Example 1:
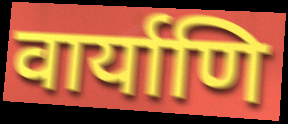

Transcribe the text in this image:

वार्याणि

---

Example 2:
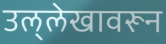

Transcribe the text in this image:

उल्लेखावरून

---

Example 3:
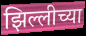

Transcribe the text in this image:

झिल्लीच्या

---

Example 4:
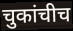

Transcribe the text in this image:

चुकांचीच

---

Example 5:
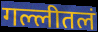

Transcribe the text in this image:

गल्लीतलं